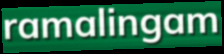
ramalingam